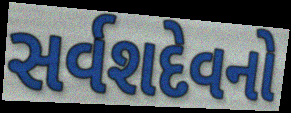
સર્વશદેવનો